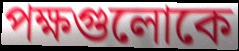
পক্ষগুলোকে